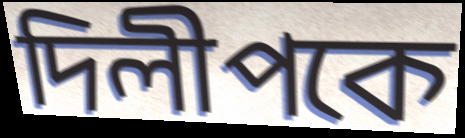
দিলীপকে